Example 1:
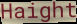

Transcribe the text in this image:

Haight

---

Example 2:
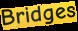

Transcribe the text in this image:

Bridges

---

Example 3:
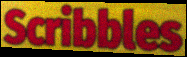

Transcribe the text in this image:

Scribbles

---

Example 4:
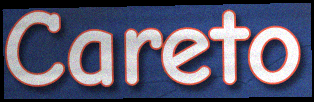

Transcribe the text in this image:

Careto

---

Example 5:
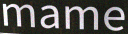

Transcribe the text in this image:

mame